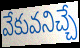
వేకువనిచ్చే